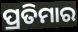
ପ୍ରତିମାର